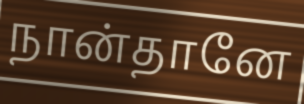
நான்தானே